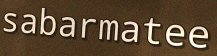
sabarmatee